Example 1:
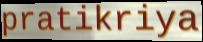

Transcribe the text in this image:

pratikriya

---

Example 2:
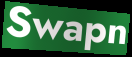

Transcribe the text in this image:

Swapn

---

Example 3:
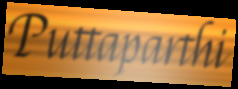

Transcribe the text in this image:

Puttaparthi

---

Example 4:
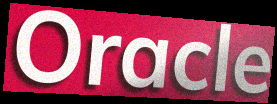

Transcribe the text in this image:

Oracle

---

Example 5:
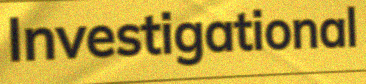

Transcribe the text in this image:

Investigational